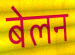
बेलन